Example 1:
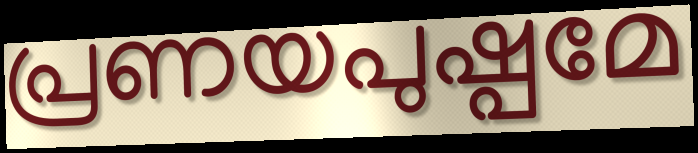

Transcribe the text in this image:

പ്രണയപുഷ്പമേ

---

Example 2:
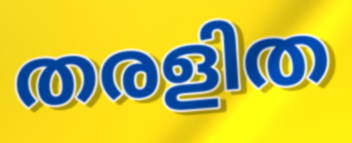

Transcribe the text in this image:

തരളിത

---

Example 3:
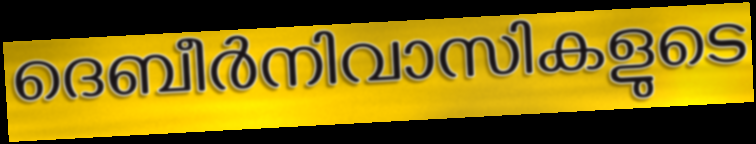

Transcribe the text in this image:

ദെബീർനിവാസികളുടെ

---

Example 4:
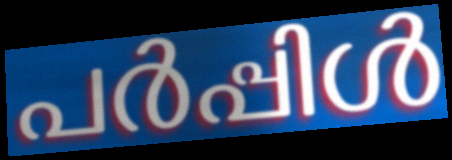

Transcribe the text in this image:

പർപ്പിൾ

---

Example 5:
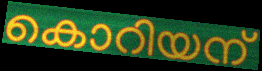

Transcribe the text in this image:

കൊറിയന്